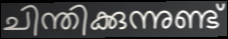
ചിന്തിക്കുന്നുണ്ട്